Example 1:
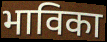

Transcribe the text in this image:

भाविका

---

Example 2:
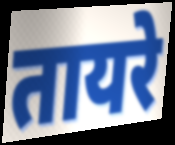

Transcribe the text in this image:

तायरे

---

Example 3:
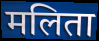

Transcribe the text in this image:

मलिता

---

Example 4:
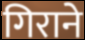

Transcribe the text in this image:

गिराने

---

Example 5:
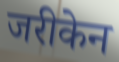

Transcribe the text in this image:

जरीकेन